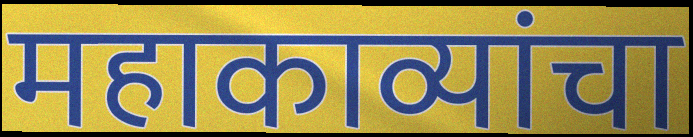
महाकाव्यांचा